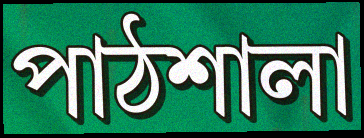
পাঠশালা